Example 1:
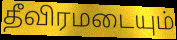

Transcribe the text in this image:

தீவிரமடையும்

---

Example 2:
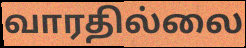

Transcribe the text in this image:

வாரதில்லை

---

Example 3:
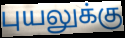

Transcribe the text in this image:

புயலுக்கு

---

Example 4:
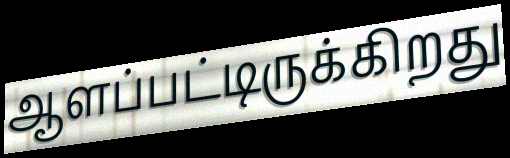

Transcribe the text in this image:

ஆளப்பட்டிருக்கிறது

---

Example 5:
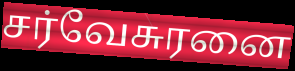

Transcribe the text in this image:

சர்வேசுரனை